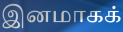
இனமாகக்